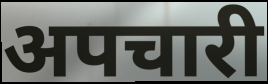
अपचारी